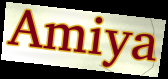
Amiya